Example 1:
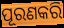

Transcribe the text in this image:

ପୂରଣକରି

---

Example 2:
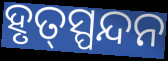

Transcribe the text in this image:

ହୃତ୍‌ସ୍ପନ୍ଦନ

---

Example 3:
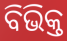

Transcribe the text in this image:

ବିଭିକ୍ତ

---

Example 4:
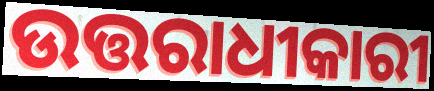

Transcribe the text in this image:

ଉତ୍ତରାଧୀକାରୀ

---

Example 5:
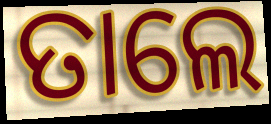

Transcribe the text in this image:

ତାଲେ